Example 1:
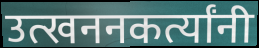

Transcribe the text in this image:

उत्खननकर्त्यांनी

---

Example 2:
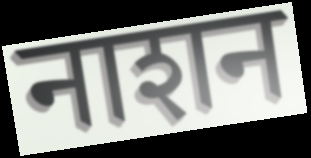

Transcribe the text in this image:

नाशन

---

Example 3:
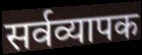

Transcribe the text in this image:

सर्वव्यापक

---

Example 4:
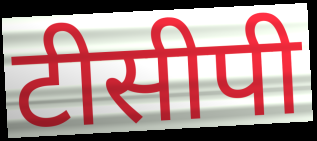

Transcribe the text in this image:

टीसीपी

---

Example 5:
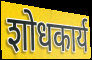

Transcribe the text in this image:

शोधकार्य